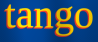
tango